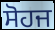
ਸੋਹਜ